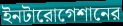
ইনটারোগেশানের